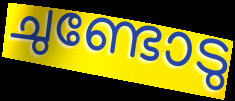
ചുണ്ടോടു